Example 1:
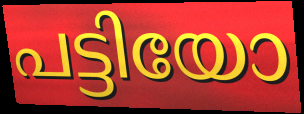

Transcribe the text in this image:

പട്ടിയോ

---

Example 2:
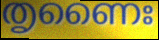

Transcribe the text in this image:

തൃണൈഃ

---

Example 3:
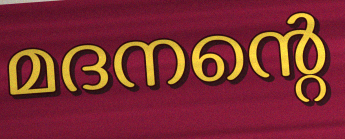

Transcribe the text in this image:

മദനന്റെ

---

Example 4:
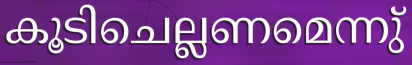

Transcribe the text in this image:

കൂടിചെല്ലണമെന്നു്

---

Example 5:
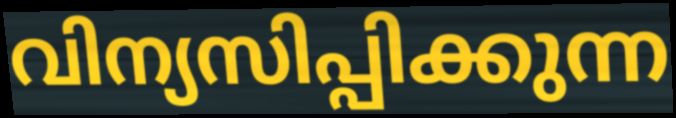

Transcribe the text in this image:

വിന്യസിപ്പിക്കുന്ന